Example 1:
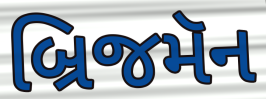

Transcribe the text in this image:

બ્રિજમૅન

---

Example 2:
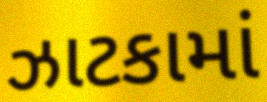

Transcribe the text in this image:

ઝાટકામાં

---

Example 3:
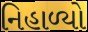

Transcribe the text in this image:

નિહાળ્યો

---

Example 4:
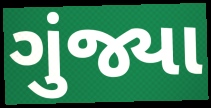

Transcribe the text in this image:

ગુંજ્યા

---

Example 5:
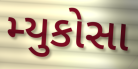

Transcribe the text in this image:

મ્યુકોસા